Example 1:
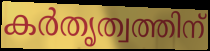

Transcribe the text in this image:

കർതൃത്വത്തിന്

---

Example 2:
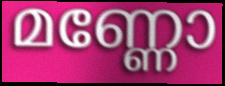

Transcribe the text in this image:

മണ്ണോ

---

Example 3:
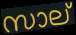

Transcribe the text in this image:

സാല്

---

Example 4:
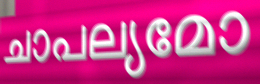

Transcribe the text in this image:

ചാപല്യമോ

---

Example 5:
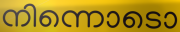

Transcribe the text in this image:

നിന്നൊടൊ